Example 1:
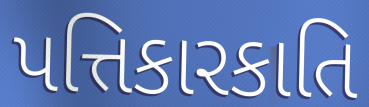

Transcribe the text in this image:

પત્તિકારકાતિ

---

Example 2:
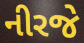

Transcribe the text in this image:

નીરજે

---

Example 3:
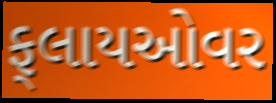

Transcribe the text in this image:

ફ્‌લાયઓવર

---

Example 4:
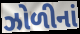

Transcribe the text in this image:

ઝોળીનાં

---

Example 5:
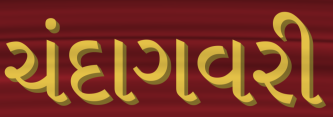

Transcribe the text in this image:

ચંદાગવરી